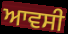
ਆਵਸੀ